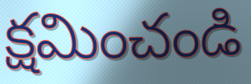
క్షమించండి